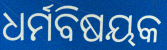
ଧର୍ମବିଷୟକ